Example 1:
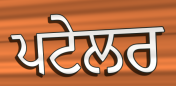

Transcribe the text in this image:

ਪਟੇਲਰ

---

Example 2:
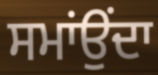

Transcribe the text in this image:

ਸਮਾਂਉਂਦਾ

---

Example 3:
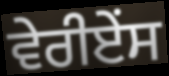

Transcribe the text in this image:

ਵੇਰੀਏਂਸ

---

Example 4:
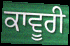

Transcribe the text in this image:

ਕਾਵੂਰੀ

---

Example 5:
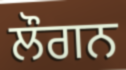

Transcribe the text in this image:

ਲੌਗਨ